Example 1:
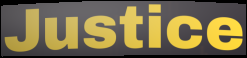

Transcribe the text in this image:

Justice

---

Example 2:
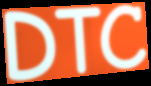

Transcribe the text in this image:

DTC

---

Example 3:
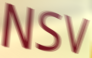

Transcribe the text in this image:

NSV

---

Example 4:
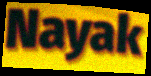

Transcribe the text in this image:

Nayak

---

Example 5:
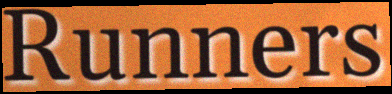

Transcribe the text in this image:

Runners